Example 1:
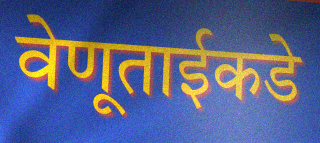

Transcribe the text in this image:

वेणूताईकडे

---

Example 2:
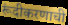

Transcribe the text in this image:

रूंदीकरणाची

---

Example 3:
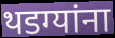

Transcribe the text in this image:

थडग्यांना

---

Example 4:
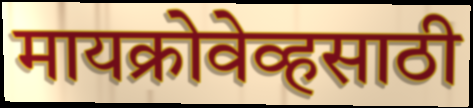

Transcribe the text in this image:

मायक्रोवेव्हसाठी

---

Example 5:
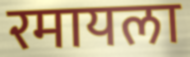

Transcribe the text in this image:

रमायला